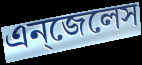
এন্জেলেস